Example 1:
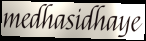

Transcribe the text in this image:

medhasidhaye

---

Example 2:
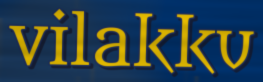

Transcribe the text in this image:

vilakku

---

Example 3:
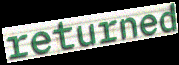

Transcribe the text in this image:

returned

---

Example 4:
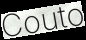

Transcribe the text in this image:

Couto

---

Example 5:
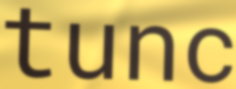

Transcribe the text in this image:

tunc